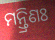
ମନ୍ତ୍ରିଣଃ